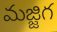
మజ్జిగ